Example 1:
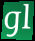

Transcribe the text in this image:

gl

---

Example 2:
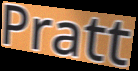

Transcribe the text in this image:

Pratt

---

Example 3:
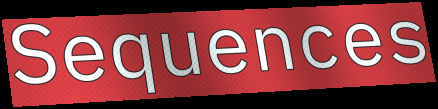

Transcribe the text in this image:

Sequences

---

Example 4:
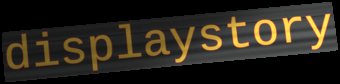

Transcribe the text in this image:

displaystory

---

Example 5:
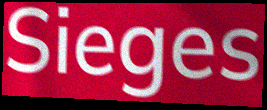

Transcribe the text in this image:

Sieges